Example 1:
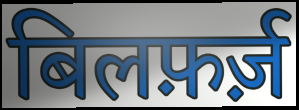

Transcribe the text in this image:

बिलफ़र्ज़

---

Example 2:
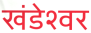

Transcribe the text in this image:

खंडेश्वर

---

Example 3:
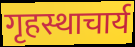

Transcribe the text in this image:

गृहस्थाचार्य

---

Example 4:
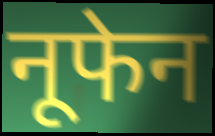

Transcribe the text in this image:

नूफेन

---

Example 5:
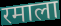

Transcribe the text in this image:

रमाला